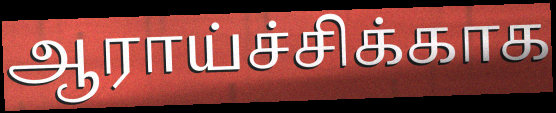
ஆராய்ச்சிக்காக